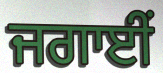
ਜਗਾਈਂ